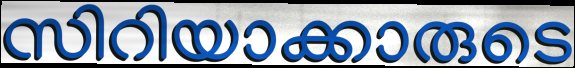
സിറിയാക്കാരുടെ